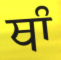
ਥਾੰ